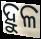
ହୁଳ